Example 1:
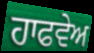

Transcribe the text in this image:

ਹਾਫਵੇਅ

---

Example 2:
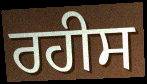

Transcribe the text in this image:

ਰਹੀਸ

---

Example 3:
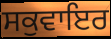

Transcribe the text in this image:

ਸਕੁਵਾਇਰ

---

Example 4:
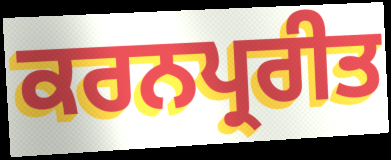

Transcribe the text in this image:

ਕਰਨਪ੍ਰਰੀਤ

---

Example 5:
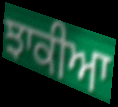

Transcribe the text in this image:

ਝਾਕੀਆ